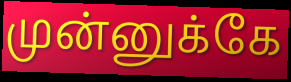
முன்னுக்கே